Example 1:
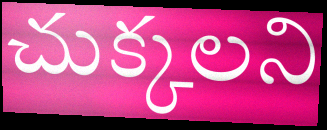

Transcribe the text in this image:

చుక్కలని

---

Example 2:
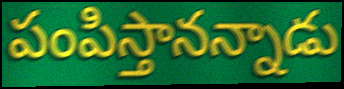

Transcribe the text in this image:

పంపిస్తానన్నాడు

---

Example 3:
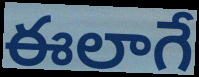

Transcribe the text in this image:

ఈలాగే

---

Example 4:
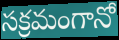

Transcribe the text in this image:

సక్రమంగానో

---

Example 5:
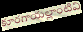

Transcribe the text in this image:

కూరగాయల్లాంటివి